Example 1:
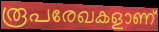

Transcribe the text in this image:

രൂപരേഖകളാണ്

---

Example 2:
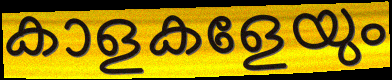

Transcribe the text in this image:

കാളകളേയും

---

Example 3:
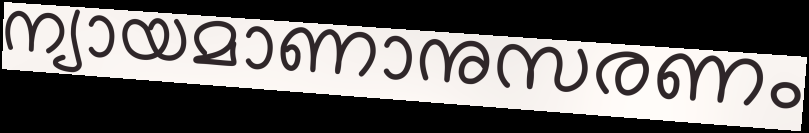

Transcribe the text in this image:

ന്യായമാണാനുസരണം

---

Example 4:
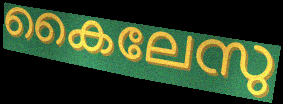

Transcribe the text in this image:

കൈലേസു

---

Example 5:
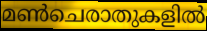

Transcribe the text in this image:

മൺചെരാതുകളിൽ